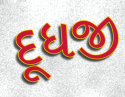
દૂધજી